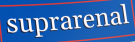
suprarenal